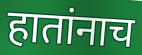
हातांनाच